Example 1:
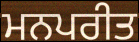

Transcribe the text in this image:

ਮਨਪਰੀਤ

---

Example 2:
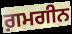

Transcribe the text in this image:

ਗ਼ਮਗੀਨ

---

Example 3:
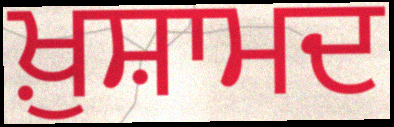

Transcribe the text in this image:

ਖ਼ੁਸ਼ਾਮਦ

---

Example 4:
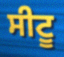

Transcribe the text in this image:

ਸੀਟੂ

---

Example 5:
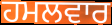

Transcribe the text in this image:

ਹਮਲਵਾਰ